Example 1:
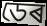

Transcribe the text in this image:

ডেৰ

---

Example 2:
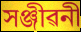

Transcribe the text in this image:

সঞ্জীৱনী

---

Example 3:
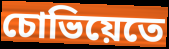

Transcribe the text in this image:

চোভিয়েতে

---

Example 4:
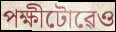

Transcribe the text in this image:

পক্ষীটোৱেও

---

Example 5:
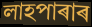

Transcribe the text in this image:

লাহপাৰাৰ